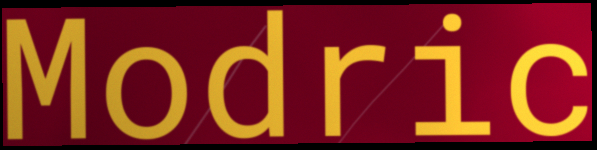
Modric